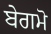
ਬੇਗਮੋ